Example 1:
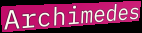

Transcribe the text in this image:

Archimedes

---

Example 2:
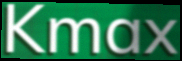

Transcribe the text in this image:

Kmax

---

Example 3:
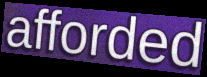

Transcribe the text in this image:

afforded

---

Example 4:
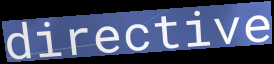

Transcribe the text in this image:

directive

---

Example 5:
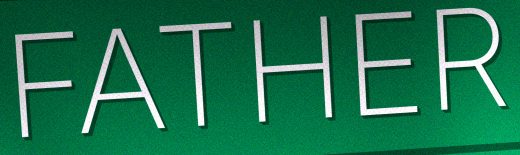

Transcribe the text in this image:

FATHER